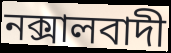
নক্সালবাদী